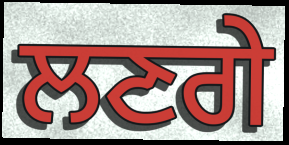
ਲਣਗੇ